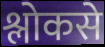
श्लोकसे